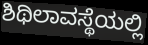
ಶಿಥಿಲಾವಸ್ಥೆಯಲ್ಲಿ